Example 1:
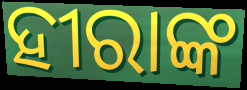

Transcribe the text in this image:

ହୀରାଙ୍କ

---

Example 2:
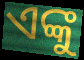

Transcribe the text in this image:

ଏଙ୍କୁ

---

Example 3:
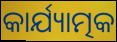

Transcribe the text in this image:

କାର୍ଯ୍ୟାତ୍ମକ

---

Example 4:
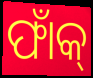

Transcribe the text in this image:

ଫାଁକ୍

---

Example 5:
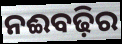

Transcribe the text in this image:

ନଈବଢ଼ିର